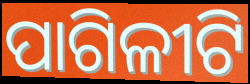
ପାଗିଳୀଟି